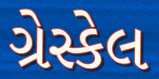
ગ્રેસ્કેલ